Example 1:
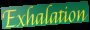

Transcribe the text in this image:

Exhalation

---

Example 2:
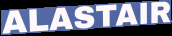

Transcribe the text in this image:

ALASTAIR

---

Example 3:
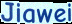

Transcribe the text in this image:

Jiawei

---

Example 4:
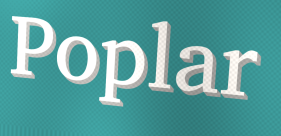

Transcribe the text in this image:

Poplar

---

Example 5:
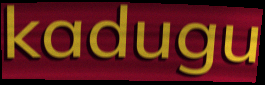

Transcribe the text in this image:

kadugu